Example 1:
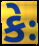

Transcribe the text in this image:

કેઃ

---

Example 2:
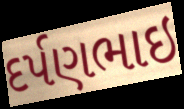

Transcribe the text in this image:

દર્પણભાઇ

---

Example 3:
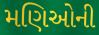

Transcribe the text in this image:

મણિઓની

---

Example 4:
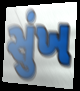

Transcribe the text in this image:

સુંખ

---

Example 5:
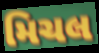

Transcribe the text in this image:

મિચલ